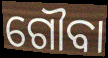
ଗୌବା